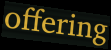
offering